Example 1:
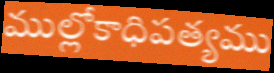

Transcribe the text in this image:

ముల్లోకాధిపత్యము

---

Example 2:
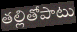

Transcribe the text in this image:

తల్లితోపాటు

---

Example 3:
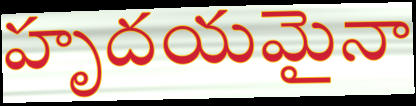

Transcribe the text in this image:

హృదయమైనా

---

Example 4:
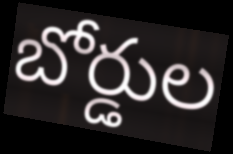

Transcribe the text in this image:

బోర్డుల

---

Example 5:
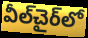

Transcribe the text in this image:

వీల్‌చైర్‌లో